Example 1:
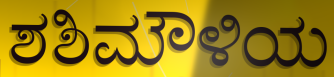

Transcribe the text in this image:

ಶಶಿಮೌಳಿಯ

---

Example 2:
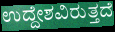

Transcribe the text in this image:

ಉದ್ದೇಶವಿರುತ್ತದೆ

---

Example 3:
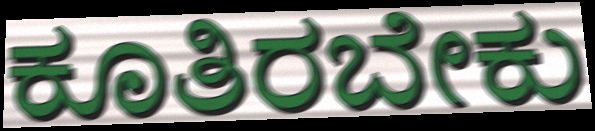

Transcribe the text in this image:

ಕೂತಿರಬೇಕು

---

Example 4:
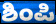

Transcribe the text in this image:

ಶಿಂಪಿ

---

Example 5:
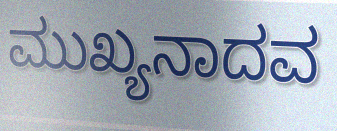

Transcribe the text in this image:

ಮುಖ್ಯನಾದವ